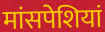
मांसपेशियां